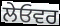
ਲੇਓਵਰ